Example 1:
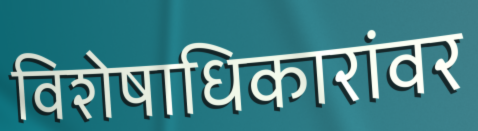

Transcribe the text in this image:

विशेषाधिकारांवर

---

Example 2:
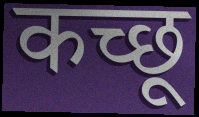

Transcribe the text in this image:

कच्छू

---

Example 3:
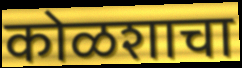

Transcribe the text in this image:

कोळशाचा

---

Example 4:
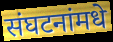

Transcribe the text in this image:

संघटनांमधे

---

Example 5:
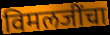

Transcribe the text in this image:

विमलजींचा